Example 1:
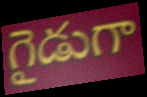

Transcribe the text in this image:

గైడుగా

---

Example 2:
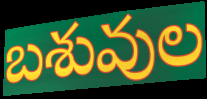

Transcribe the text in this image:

బశువుల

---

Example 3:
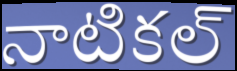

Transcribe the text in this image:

నాటికల్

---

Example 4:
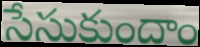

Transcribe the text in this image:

సేసుకుందాం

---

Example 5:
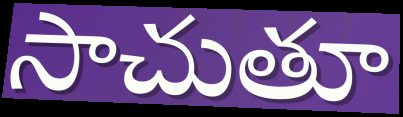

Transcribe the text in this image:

సాచుతూ